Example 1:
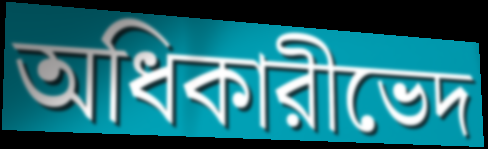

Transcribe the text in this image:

অধিকারীভেদ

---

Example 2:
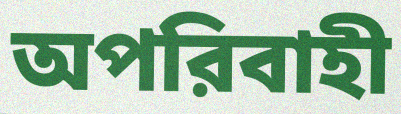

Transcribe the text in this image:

অপরিবাহী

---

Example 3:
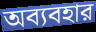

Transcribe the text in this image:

অব্যবহার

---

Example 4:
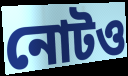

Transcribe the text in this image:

নোটও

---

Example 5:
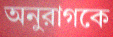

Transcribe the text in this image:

অনুরাগকে